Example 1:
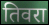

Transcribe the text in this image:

तिवरा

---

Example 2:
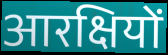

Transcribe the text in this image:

आरक्षियों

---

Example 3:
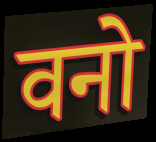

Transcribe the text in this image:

वनो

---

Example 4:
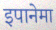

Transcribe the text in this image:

इपानेमा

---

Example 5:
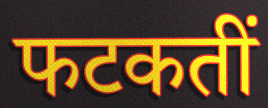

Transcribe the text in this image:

फटकतीं